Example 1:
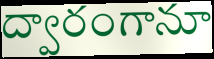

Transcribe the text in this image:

ద్వారంగానూ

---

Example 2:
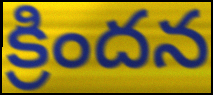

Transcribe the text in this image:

క్రిందన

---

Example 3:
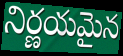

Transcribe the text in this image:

నిర్ణయమైన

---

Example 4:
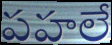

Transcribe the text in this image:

పహలే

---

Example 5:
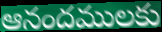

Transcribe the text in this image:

ఆనందములకు